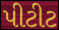
પીટીટ